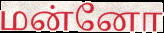
மன்னோ